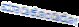
ಮಾಡಿಕೊಂಡಿರೋ